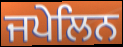
ਜਪੇਲਿਨ